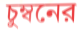
চুম্বনের